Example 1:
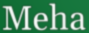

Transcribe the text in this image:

Meha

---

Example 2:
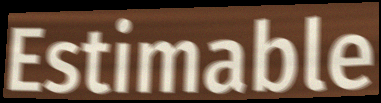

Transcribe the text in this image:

Estimable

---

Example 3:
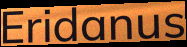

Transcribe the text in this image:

Eridanus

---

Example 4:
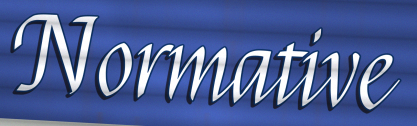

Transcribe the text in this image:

Normative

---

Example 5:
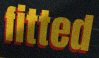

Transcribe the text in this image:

fitted